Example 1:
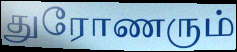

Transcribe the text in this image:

துரோணரும்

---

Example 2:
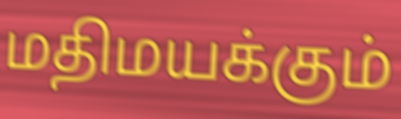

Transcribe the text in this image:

மதிமயக்கும்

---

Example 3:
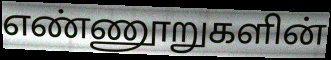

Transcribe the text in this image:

எண்ணூறுகளின்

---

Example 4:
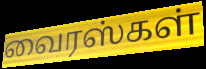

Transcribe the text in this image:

வைரஸ்கள்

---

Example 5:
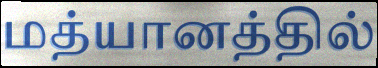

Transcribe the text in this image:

மத்யானத்தில்